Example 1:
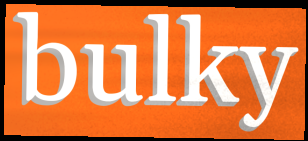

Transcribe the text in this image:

bulky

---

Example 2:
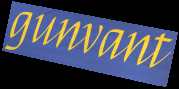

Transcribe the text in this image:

gunvant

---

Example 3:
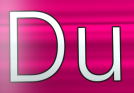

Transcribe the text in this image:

Du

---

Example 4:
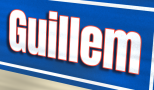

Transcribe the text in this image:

Guillem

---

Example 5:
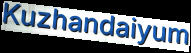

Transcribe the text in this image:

Kuzhandaiyum